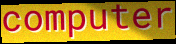
computer